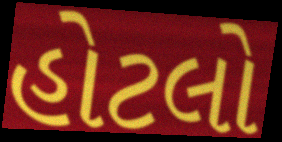
હોટલો